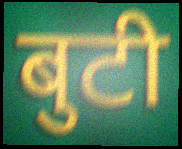
बुटी